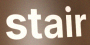
stair